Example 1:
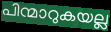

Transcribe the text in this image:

പിന്മാറുകയല്ല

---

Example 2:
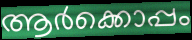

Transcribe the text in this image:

ആർക്കൊപ്പം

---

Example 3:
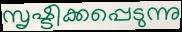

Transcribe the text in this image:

സൃഷ്ടിക്കപ്പെടുന്നു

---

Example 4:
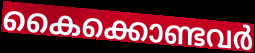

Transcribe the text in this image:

കൈക്കൊണ്ടവർ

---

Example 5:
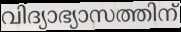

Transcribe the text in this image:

വിദ്യാഭ്യാസത്തിന്